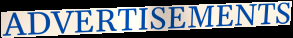
ADVERTISEMENTS